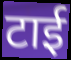
टाई